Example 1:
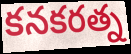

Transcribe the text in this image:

కనకరత్న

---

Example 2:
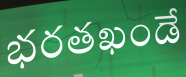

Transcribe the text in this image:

భరతఖండే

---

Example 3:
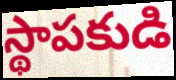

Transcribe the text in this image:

స్థాపకుడి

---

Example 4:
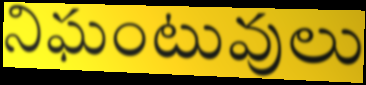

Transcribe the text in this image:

నిఘంటువులు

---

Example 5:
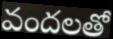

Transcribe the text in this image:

వందలతో